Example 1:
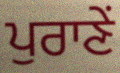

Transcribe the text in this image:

ਪੁਰਾਣੇਂ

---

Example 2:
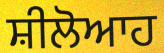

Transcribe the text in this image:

ਸ਼ੀਲੋਆਹ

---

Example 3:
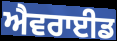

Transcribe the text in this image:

ਐਵਰਾਈਡ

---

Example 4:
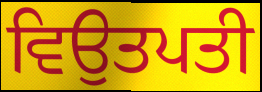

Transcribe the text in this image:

ਵਿਉਤਪਤੀ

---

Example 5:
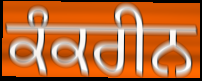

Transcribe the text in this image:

ਕੰਕਰੀਨ